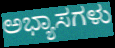
ಅಭ್ಯಾಸಗಳು